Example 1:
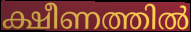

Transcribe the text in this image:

ക്ഷീണത്തിൽ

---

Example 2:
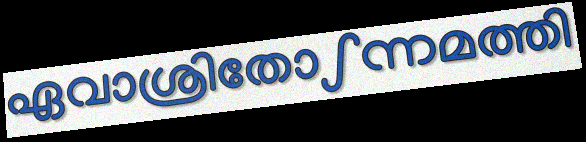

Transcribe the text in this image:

ഏവാശ്രിതോഽന്നമത്തി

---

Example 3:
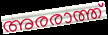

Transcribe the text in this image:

അരരാത്ത്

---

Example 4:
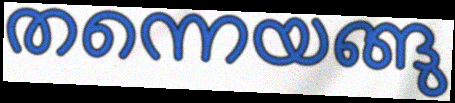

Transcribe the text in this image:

തന്നെയങ്ങു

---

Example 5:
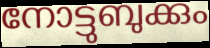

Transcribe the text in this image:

നോട്ടുബുക്കും